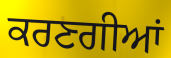
ਕਰਣਗੀਆਂ